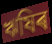
ঋষিৰ